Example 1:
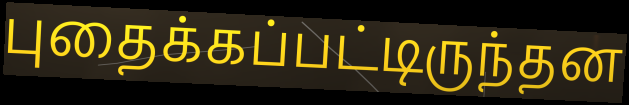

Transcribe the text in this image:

புதைக்கப்பட்டிருந்தன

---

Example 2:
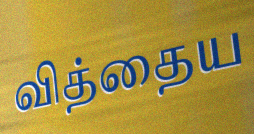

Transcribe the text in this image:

வித்தைய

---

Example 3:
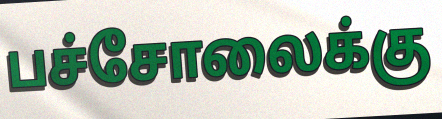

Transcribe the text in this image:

பச்சோலைக்கு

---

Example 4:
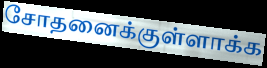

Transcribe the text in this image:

சோதனைக்குள்ளாக்க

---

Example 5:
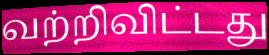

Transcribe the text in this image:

வற்றிவிட்டது